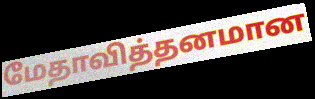
மேதாவித்தனமான